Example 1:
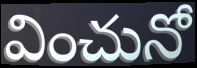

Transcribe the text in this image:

వించునో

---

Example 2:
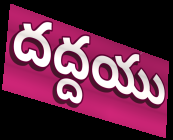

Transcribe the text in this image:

దద్దయు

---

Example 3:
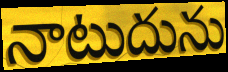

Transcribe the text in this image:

నాటుదును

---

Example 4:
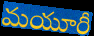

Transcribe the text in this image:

మయూరీ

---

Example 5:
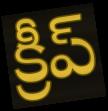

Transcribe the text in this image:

క్రీప్